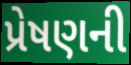
પ્રેષણની